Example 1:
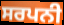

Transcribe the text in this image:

ਸਰਪਨੀ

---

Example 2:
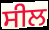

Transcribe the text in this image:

ਸੀਲ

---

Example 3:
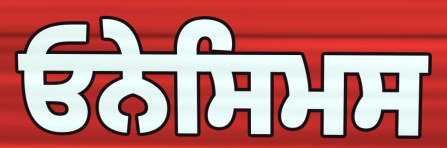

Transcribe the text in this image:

ਓਨੇਸਿਮਸ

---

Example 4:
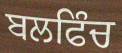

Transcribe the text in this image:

ਬਲਫਿੰਚ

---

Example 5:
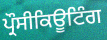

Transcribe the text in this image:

ਪ੍ਰੌਸੀਕਿਊਟਿੰਗ